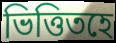
ভিত্তিতহে